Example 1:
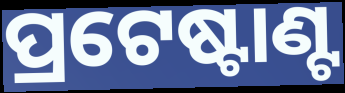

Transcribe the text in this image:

ପ୍ରଟେଷ୍ଟାଣ୍ଟ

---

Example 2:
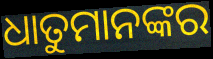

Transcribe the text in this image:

ଧାତୁମାନଙ୍କର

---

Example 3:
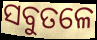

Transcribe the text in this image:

ସବୁତଳେ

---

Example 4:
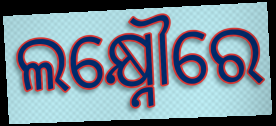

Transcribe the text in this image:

ଲକ୍ଷ୍ନୌରେ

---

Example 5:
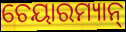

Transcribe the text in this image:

ଚେୟାରମ୍ୟାନ୍